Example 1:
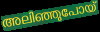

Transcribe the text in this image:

അലിഞ്ഞുപോയ്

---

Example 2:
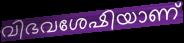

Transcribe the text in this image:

വിഭവശേഷിയാണ്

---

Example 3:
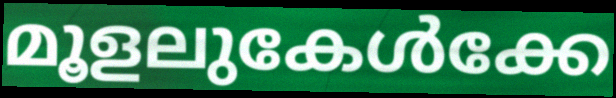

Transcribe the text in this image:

മൂളലുകേൾക്കേ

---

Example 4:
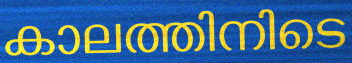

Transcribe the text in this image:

കാലത്തിനിടെ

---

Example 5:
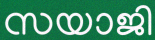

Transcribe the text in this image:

സയാജി